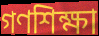
গণশিক্ষা